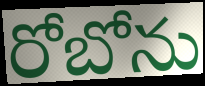
రోబోను